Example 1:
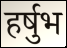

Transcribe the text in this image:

हर्षुभ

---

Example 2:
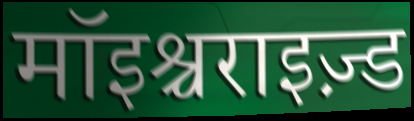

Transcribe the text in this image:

मॉइश्चराइज़्ड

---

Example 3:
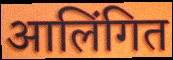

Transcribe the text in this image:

आलिंगित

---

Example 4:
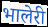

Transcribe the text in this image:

भालेरी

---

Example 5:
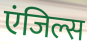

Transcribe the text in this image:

एंजिल्‍स